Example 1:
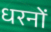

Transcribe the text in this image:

धरनों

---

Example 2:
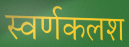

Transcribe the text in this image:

स्वर्णकलश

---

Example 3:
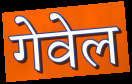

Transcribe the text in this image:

गेवेल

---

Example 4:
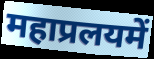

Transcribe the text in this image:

महाप्रलयमें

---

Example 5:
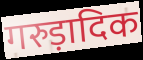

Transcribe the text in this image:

गरुड़ादिक